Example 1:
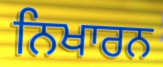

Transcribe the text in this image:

ਨਿਖਾਰਨ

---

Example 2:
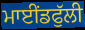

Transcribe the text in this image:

ਮਾਈਂਡਫੁੱਲੀ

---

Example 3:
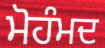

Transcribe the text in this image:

ਮੋਹੰਮਦ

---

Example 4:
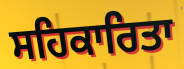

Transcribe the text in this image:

ਸਹਿਕਾਰਿਤਾ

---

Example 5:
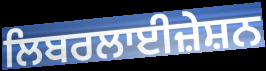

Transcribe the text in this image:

ਲਿਬਰਲਾਈਜ਼ੇਸ਼ਨ